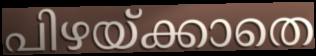
പിഴയ്ക്കാതെ